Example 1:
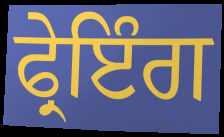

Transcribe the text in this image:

ਫ੍ਰੇਇੰਗ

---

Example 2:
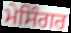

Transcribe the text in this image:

ਮੇਸਿੰਗਰ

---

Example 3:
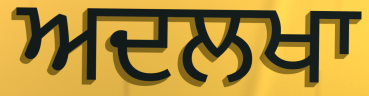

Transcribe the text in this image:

ਅਦਲਖਾ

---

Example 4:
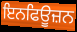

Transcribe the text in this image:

ਇਨਫਿਊਜ਼ਨ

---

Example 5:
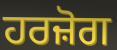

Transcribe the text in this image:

ਹਰਜ਼ੋਗ